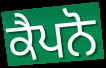
ਕੈਪਨੋ